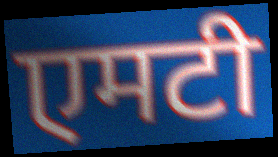
एमटी